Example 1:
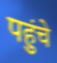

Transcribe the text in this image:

पहुंचे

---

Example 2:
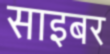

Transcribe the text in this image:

साइबर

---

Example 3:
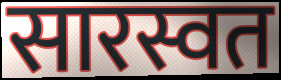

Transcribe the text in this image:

सारस्वत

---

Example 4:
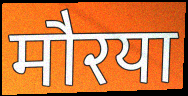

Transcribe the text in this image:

मौरया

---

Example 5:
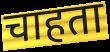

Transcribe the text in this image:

चाहता